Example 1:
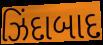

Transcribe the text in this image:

ઝિંદાબાદ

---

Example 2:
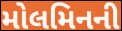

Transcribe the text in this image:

મોલમિનની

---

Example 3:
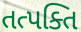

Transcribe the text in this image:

તત્પક્તિ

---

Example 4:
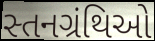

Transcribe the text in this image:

સ્તનગ્રંથિઓ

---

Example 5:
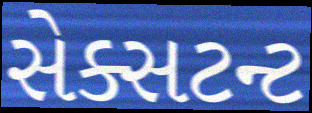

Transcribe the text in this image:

સેક્સટન્ટ